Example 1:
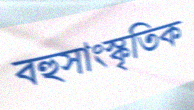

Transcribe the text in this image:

বহুসাংস্কৃতিক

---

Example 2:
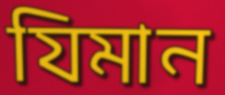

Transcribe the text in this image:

যিমান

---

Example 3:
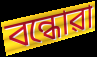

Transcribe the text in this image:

বন্ধোৱা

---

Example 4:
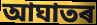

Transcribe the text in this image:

আঘাতৰ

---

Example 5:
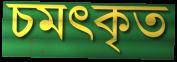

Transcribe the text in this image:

চমৎকৃত